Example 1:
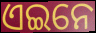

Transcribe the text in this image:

ଏଇନେ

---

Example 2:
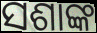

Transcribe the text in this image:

ସଶାଙ୍କ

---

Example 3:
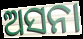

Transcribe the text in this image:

ଅସନା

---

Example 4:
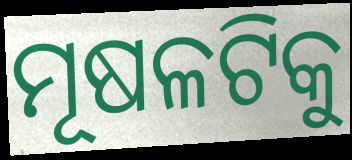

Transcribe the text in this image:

ମୂଷଳଟିକୁ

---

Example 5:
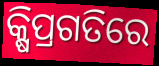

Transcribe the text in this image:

କ୍ଷିପ୍ରଗତିରେ